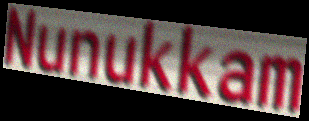
Nunukkam